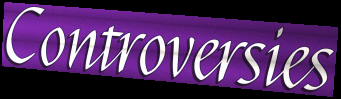
Controversies